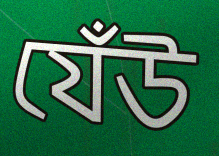
যেঁউ